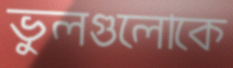
ভুলগুলোকে